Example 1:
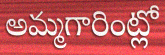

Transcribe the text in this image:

అమ్మగారింట్లో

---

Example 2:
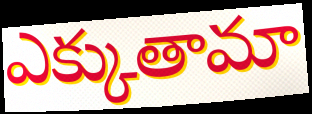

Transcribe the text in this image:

ఎక్కుతామా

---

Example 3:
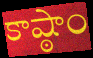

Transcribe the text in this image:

కాష్ఠాం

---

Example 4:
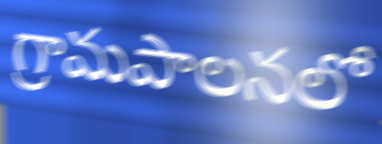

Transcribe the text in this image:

గ్రామపాలనలో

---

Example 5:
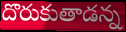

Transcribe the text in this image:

దొరుకుతాడన్న